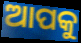
ଆପକୁ